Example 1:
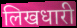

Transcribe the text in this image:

लिखधारी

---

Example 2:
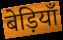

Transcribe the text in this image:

बेड़ियाँ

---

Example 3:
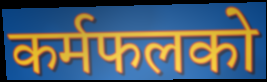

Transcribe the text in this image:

कर्मफलको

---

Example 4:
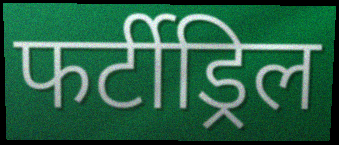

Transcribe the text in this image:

फर्टीड्रिल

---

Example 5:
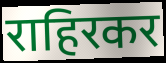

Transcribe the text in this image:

राहिरकर